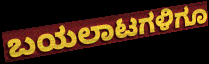
ಬಯಲಾಟಗಳಿಗೂ